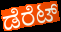
ಡೆರೆಟ್